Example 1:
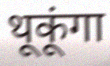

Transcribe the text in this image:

थूकूंगा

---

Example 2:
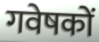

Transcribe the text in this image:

गवेषकों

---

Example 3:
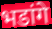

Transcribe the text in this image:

भडांगे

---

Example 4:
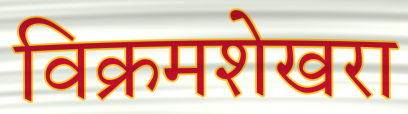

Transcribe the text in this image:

विक्रमशेखरा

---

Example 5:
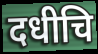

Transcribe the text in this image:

दधीचि